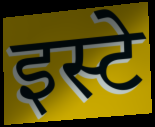
इस्टे